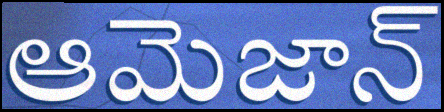
ఆమెజాన్